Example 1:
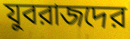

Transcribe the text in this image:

যুবরাজদের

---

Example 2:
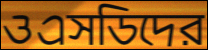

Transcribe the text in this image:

ওএসডিদের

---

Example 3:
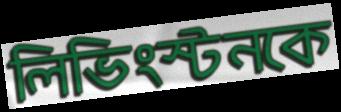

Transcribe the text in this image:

লিভিংস্টনকে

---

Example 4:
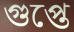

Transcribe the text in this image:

গুপ্তে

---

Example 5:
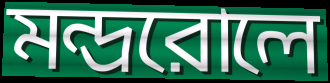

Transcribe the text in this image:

মন্দ্ররোলে